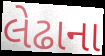
લેઢાના